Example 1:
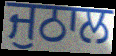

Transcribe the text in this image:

ਜੁਠਾਲ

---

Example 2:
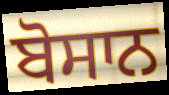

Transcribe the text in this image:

ਬੋਸਾਨ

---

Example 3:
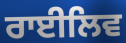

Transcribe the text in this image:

ਰਾਈਲਿਵ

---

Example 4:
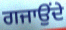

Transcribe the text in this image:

ਗਜਾਉਂਦੇ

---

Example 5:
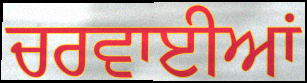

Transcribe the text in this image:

ਚਰਵਾਈਆਂ